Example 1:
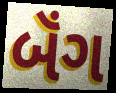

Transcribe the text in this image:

બૅંગ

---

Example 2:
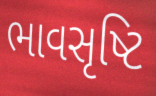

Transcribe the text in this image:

ભાવસૃષ્ટિ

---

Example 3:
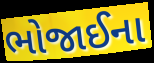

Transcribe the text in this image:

ભોજાઈના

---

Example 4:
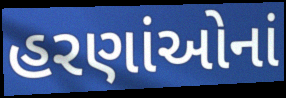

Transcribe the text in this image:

હરણાંઓનાં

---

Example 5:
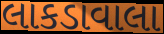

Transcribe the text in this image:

લાકડાવાલા